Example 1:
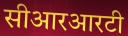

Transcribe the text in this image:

सीआरआरटी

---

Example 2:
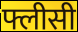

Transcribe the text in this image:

फ्लीसी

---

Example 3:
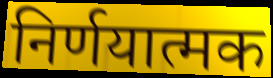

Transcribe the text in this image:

निर्णयात्मक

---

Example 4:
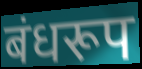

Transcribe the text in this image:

बंधरूप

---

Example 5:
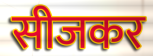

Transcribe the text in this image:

सीजकर